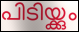
പിടിയ്ക്കും